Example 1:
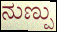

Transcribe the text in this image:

ನುಣ್ಪು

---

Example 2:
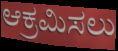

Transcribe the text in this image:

ಆಕ್ರಮಿಸಲು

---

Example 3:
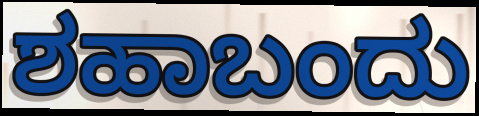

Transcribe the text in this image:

ಶಹಾಬಂದು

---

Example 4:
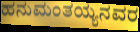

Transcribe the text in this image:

ಹನುಮಂತಯ್ಯನವರ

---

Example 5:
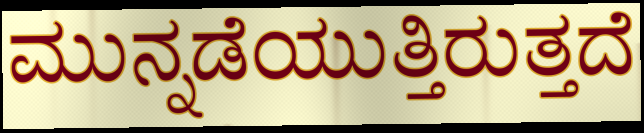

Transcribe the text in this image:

ಮುನ್ನಡೆಯುತ್ತಿರುತ್ತದೆ